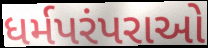
ધર્મપરંપરાઓ